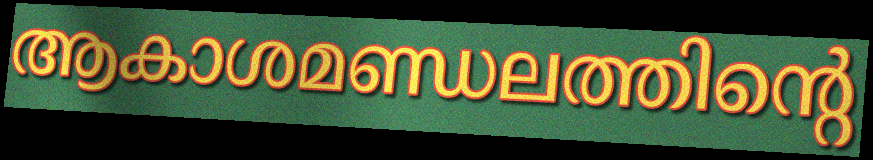
ആകാശമണ്ഡലത്തിന്റെ